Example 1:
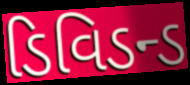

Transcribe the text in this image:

ડિવિડન્ડ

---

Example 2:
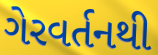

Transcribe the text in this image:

ગેરવર્તનથી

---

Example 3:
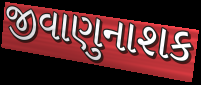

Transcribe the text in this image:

જીવાણુનાશક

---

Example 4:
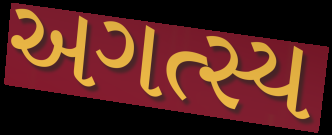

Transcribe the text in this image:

અગત્સ્ય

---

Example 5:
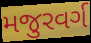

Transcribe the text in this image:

મજુરવર્ગ